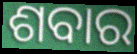
ଶବାର